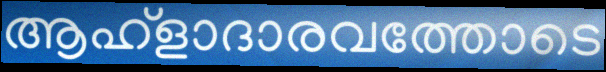
ആഹ്ളാദാരവത്തോടെ